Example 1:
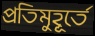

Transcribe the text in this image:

প্রতিমুহূর্তে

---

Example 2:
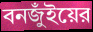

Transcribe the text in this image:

বনজুঁইয়ের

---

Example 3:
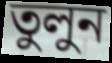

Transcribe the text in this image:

তুলুন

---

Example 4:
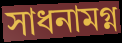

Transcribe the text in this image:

সাধনামগ্ন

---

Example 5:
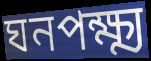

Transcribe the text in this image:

ঘনপক্ষ্ম